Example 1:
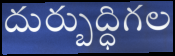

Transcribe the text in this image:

దుర్బుద్ధిగల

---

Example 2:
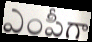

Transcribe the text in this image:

ఎంపీగా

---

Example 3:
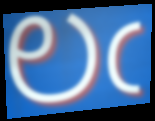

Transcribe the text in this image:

లఁ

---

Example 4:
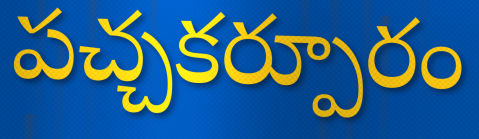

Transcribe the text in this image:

పచ్చకర్పూరం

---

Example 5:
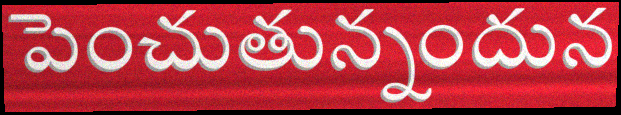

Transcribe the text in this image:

పెంచుతున్నందున